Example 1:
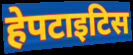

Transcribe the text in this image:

हेपटाइटिस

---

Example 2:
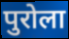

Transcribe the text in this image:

पुरोला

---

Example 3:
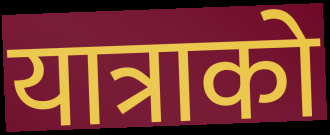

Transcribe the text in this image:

यात्राको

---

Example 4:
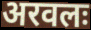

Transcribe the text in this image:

अरवलः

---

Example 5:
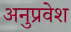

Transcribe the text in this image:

अनुप्रवेश